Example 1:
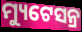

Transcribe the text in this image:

ମ୍ୟୁଟେସନ୍ର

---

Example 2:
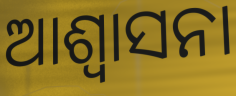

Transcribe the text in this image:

ଆଶ୍ୱାସନା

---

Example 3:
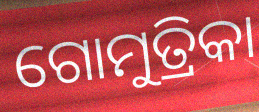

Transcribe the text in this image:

ଗୋମୁତ୍ରିକା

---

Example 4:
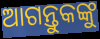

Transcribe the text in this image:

ଆଗନ୍ତୁକଙ୍କୁ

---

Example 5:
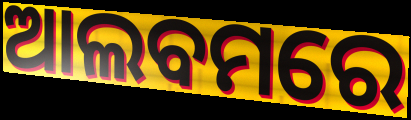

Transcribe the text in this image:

ଆଲବମରେ